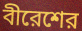
বীরেশের